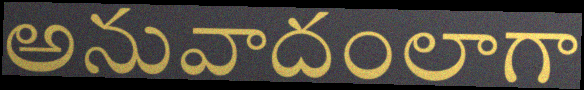
అనువాదంలాగా